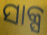
ସାକ୍ସ